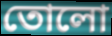
তোলো